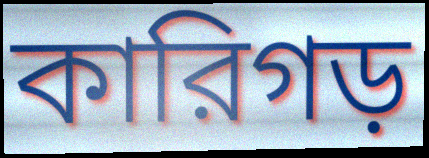
কারিগড়